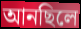
আনছিলে